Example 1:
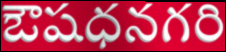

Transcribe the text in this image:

ఔషధనగరి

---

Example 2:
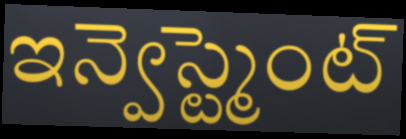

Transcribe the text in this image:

ఇన్వెస్ట్మెంట్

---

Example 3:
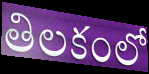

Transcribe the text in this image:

తిలకంలో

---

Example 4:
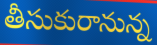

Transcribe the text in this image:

తీసుకురానున్న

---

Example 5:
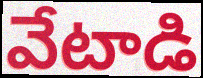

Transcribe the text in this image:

వేటాడి